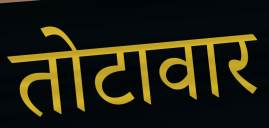
तोटावार